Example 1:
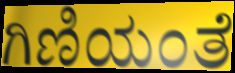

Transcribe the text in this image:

ಗಿಣಿಯಂತೆ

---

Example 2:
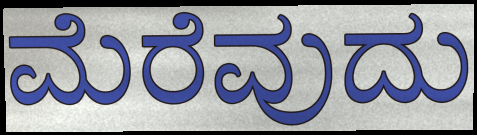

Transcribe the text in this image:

ಮೆರೆವುದು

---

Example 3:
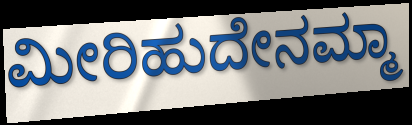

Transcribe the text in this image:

ಮೀರಿಹುದೇನಮ್ಮಾ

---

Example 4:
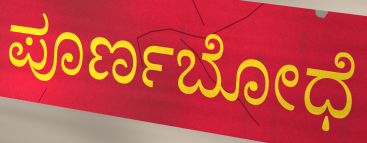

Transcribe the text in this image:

ಪೂರ್ಣಬೋಧೆ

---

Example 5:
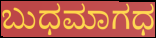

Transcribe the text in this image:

ಬುಧಮಾಗಧ